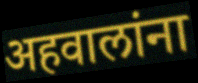
अहवालांना